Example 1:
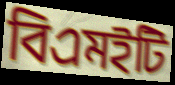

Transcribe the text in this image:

বিএমইটি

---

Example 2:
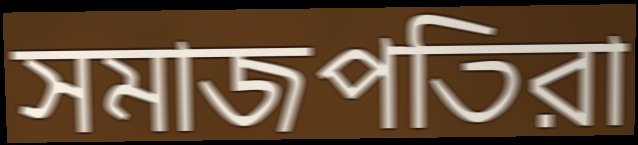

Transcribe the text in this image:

সমাজপতিরা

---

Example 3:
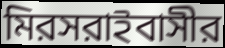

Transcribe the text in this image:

মিরসরাইবাসীর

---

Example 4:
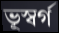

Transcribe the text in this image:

ভূস্বর্গ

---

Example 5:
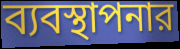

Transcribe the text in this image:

ব্যবস্থাপনার